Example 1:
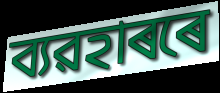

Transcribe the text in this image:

ব্যৱহাৰৰে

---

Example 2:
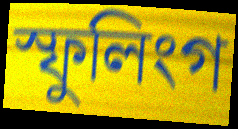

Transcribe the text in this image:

স্ফুলিংগ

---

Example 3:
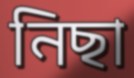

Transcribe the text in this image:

নিছা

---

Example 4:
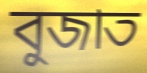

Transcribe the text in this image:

বুজাত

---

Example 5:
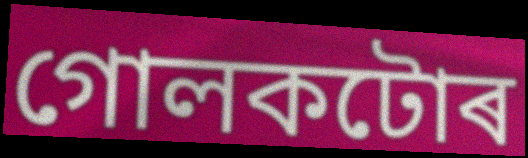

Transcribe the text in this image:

গোলকটোৰ